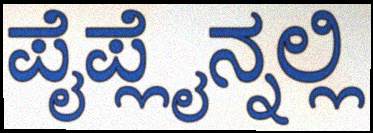
ಪೈಪ್ಲೈನ್ನಲ್ಲಿ